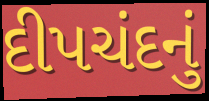
દીપચંદનું